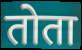
तोता